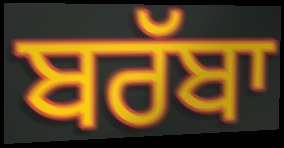
ਬਰੱਬਾ